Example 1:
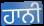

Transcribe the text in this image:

ਹਾਨੀ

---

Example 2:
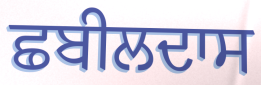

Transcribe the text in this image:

ਛਬੀਲਦਾਸ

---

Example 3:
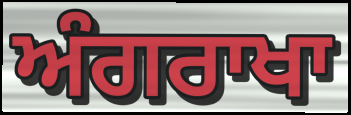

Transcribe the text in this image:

ਅੰਗਰਾਖਾ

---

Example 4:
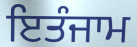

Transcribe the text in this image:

ਇਤੰਜਾਮ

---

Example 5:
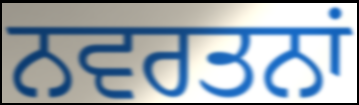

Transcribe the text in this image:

ਨਵਰਤਨਾਂ